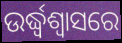
ଉର୍ଦ୍ଧ୍ଵଶ୍ୱାସରେ